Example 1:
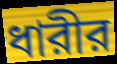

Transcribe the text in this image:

ধারীর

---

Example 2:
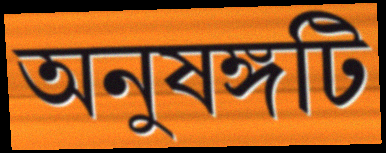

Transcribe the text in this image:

অনুষঙ্গটি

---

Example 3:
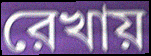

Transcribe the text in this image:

রেখায়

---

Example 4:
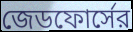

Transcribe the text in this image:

জেডফোর্সের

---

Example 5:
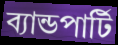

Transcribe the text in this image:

ব্যান্ডপার্টি